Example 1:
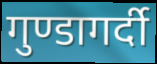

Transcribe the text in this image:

गुण्डागर्दी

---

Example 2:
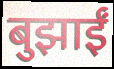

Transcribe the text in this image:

बुझाईं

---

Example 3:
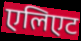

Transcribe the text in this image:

एलिएट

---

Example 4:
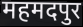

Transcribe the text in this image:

महमदपुर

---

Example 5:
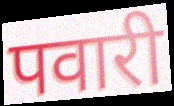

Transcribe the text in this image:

पवारी